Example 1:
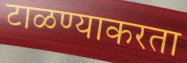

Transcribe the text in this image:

टाळण्याकरता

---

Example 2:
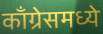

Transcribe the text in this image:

काँग्रेसमध्ये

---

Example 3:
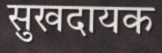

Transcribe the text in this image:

सुखदायक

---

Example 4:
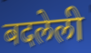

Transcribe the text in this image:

बदलेली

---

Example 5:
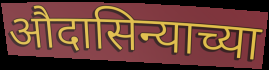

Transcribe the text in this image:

औदासिन्याच्या